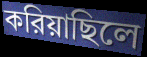
করিয়াছিলে